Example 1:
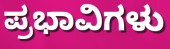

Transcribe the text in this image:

ಪ್ರಭಾವಿಗಳು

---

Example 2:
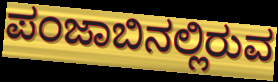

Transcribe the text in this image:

ಪಂಜಾಬಿನಲ್ಲಿರುವ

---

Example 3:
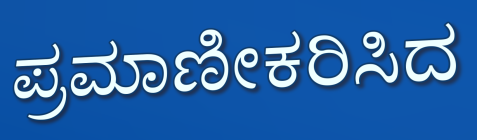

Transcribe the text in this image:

ಪ್ರಮಾಣೀಕರಿಸಿದ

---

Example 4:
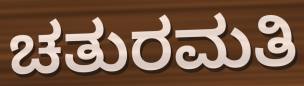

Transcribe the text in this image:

ಚತುರಮತಿ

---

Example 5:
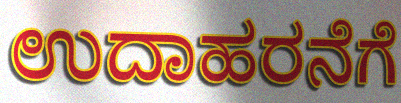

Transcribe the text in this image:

ಉದಾಹರನೆಗೆ